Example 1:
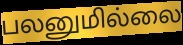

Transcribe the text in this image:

பலனுமில்லை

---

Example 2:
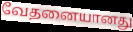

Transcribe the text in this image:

வேதனையானது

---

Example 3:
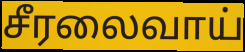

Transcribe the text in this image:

சீரலைவாய்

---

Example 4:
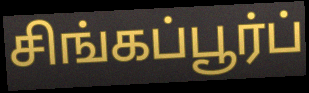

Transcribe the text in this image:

சிங்கப்பூர்ப்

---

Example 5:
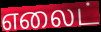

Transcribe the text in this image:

எலைட்